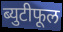
ब्युटीफूल